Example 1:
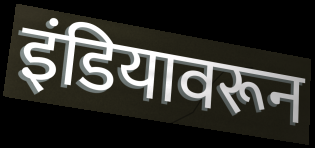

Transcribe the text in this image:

इंडियावरून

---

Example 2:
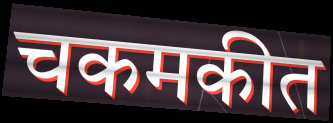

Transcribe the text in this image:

चकमकीत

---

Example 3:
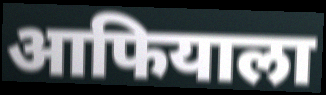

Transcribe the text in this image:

आफियाला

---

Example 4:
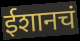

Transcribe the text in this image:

ईशानचं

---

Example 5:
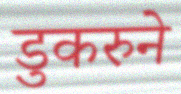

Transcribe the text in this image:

डुकरुने